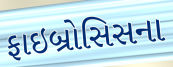
ફાઇબ્રોસિસના